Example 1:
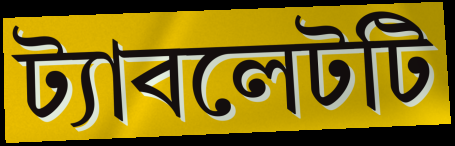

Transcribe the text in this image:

ট্যাবলেটটি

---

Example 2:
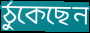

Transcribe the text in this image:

ঠুকেছেন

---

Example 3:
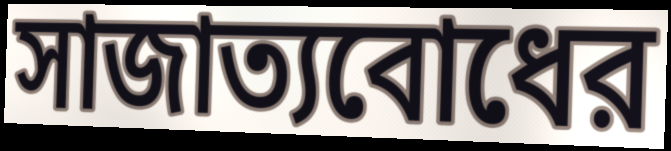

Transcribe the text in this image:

সাজাত্যবোধের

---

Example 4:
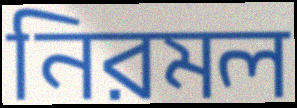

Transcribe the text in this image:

নিরমল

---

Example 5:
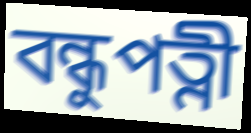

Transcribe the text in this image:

বন্ধুপত্নী